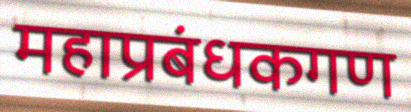
महाप्रबंधकगण